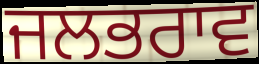
ਜਲਭਰਾਵ